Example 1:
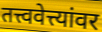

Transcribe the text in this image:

तत्त्ववेत्त्यांवर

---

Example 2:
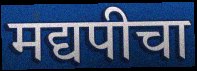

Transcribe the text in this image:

मद्यपीचा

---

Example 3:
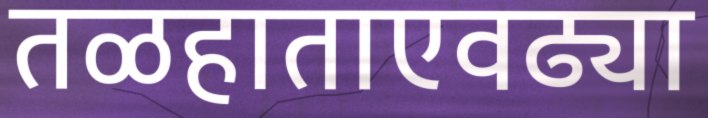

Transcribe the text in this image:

तळहाताएवढ्या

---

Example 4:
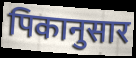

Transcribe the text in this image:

पिकानुसार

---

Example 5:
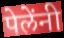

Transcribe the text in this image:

पेलेंनी